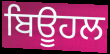
ਬਿਊਹਲ